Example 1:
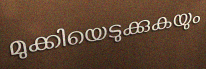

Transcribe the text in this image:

മുക്കിയെടുക്കുകയും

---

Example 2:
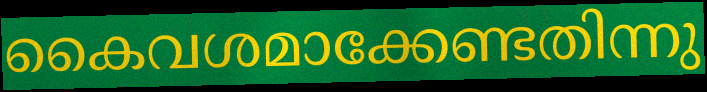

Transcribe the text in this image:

കൈവശമാക്കേണ്ടതിന്നു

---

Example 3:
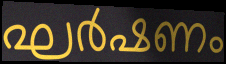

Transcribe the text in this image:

ഘർഷണം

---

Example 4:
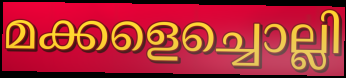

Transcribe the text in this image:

മക്കളെച്ചൊല്ലി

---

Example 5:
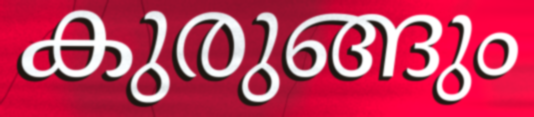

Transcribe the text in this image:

കുരുങ്ങും